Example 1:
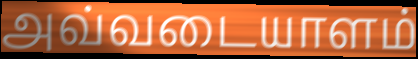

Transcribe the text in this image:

அவ்வடையாளம்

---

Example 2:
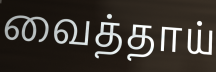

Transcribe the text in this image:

வைத்தாய்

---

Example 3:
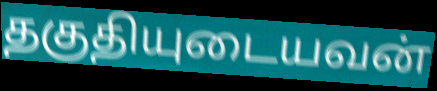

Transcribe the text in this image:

தகுதியுடையவன்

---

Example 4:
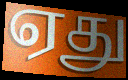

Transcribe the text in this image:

ஏது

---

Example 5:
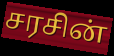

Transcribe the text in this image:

சரசின்